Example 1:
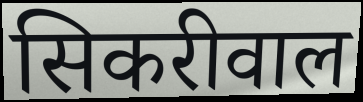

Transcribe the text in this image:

सिकरीवाल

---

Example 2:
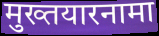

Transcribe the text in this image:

मुख्तयारनामा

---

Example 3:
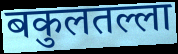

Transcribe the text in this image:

बकुलतल्ला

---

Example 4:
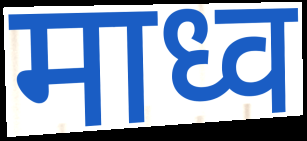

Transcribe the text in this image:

माध्व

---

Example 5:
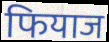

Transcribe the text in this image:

फियाज